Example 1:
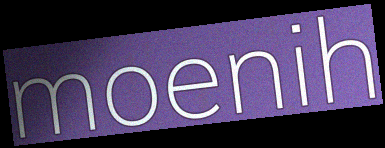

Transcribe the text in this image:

moenih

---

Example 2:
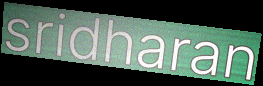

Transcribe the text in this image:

sridharan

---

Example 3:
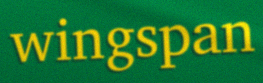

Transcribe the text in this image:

wingspan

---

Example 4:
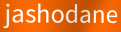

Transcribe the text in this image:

jashodane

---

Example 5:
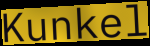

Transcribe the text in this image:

Kunkel